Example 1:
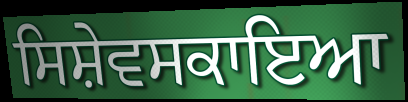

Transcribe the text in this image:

ਸਿਸ਼ੇਵਸਕਾਇਆ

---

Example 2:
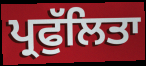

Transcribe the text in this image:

ਪ੍ਰਫੁੱਲਿਤਾ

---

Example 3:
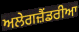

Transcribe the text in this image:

ਅਲੇਗਜ਼ੈਂਡਰੀਆ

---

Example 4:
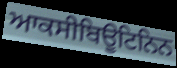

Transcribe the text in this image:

ਆਕਸੀਬਿਊਟਿਨਿਨ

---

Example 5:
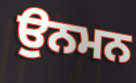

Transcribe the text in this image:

ਉਨਮਨ